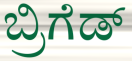
ಬ್ರಿಗೆಡ್